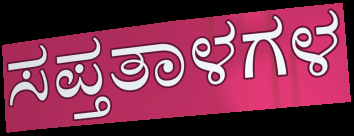
ಸಪ್ತತಾಳಗಳ